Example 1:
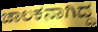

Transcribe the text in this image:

ಚಾಲಕನಾಗಿದ್ದ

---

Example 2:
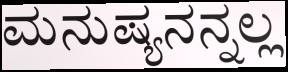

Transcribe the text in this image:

ಮನುಷ್ಯನನ್ನಲ್ಲ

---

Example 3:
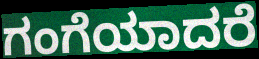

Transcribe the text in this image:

ಗಂಗೆಯಾದರೆ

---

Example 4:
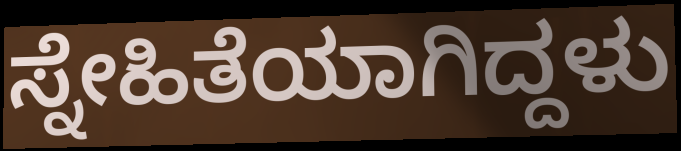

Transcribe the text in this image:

ಸ್ನೇಹಿತೆಯಾಗಿದ್ದಳು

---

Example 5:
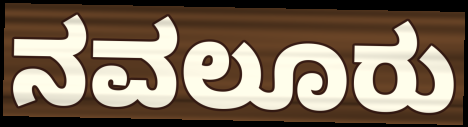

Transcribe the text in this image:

ನವಲೂರು